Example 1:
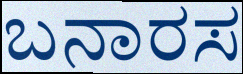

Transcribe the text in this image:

ಬನಾರಸ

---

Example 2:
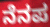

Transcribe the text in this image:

ನೆನಪ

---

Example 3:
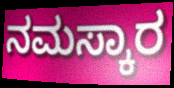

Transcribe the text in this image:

ನಮಸ್ಕಾರ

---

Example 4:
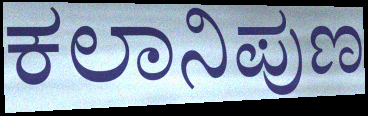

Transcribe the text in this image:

ಕಲಾನಿಪುಣ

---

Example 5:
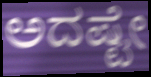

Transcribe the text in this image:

ಅದಷ್ಟೇ